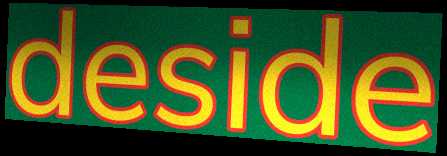
deside